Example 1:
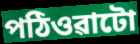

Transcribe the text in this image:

পঠিওৱাটো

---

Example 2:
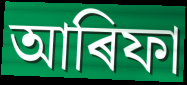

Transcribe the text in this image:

আৰিফা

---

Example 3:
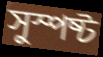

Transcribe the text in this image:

সুস্পষ্ট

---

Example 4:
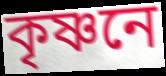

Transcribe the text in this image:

কৃষ্ণনে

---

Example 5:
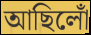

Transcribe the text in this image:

আছিলোঁ